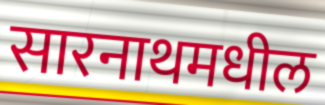
सारनाथमधील